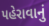
પહેરાવાનું